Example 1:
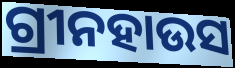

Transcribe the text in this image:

ଗ୍ରୀନହାଉସ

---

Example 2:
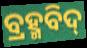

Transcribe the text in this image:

ବ୍ରହ୍ମବିଦ୍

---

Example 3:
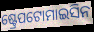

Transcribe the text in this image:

ଷ୍ଟ୍ରେପଟୋମାଇସିନ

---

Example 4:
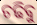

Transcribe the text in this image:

ଚଢିବୁ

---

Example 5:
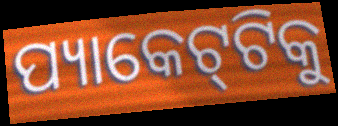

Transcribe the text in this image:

ପ୍ୟାକେଟ୍‌ଟିକୁ